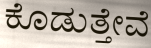
ಕೊಡುತ್ತೇವೆ